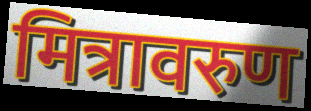
मित्रावरुण